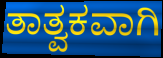
ತಾತ್ವಕವಾಗಿ